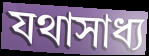
যথাসাধ্য